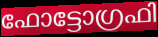
ഫോട്ടോഗ്രഫി